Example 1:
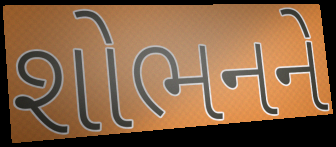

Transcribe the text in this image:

શોભનને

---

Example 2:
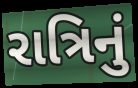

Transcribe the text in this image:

રાત્રિનું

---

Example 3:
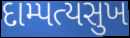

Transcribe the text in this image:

દામ્પત્યસુખ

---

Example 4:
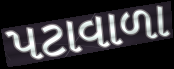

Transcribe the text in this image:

પટાવાળા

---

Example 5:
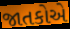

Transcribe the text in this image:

જાતકોએ